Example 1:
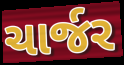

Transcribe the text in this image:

ચાર્જર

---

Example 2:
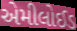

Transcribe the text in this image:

એમીલોઈડ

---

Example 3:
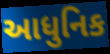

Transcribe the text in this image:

આધુનિક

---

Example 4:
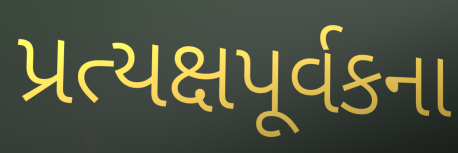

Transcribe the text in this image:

પ્રત્યક્ષપૂર્વકના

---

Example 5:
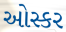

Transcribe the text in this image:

ઓસ્કર